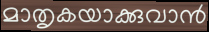
മാതൃകയാക്കുവാൻ